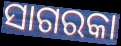
ସାଗରକା